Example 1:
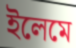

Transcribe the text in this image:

ইলেমে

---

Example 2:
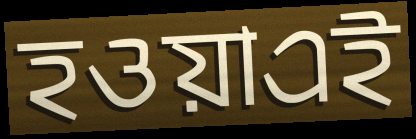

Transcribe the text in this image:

হওয়াএই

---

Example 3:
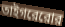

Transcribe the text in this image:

তাইগরেরোর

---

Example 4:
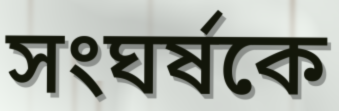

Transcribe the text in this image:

সংঘর্ষকে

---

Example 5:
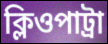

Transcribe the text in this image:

ক্লিওপাট্রা